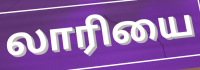
லாரியை